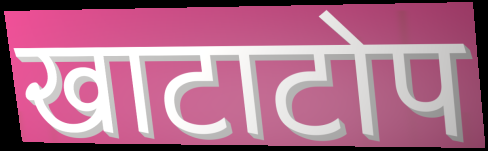
खाटाटोप